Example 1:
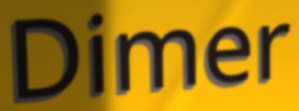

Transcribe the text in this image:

Dimer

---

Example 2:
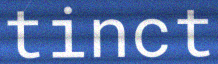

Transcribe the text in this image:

tinct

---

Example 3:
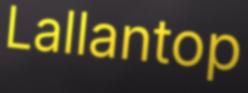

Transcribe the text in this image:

Lallantop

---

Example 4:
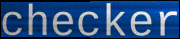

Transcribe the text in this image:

checker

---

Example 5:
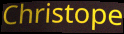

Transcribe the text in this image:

Christope